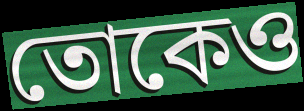
তোকেও